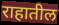
राहातील